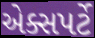
એક્સપર્ટે